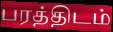
பரத்திடம்